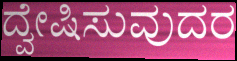
ದ್ವೇಷಿಸುವುದರ